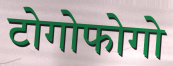
टोगोफोगो